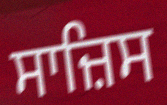
ਸਾਜ਼ਿਸ